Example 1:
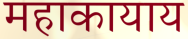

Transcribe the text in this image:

महाकायाय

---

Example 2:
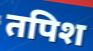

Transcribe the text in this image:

तपिश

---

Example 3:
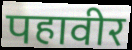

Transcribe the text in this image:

पहावीर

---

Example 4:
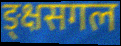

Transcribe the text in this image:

ङ्क्षसगल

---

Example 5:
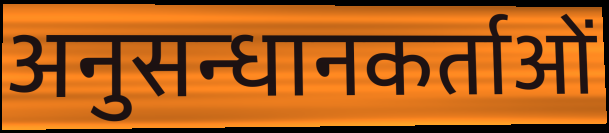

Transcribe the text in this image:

अनुसन्धानकर्ताओं